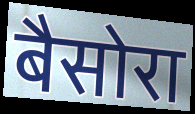
बैसोरा